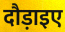
दौड़ाइए